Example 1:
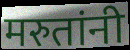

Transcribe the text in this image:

मरुतांनी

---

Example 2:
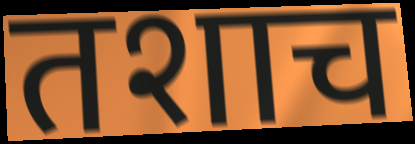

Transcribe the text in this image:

तशाच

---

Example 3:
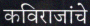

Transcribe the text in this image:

कविराजांचे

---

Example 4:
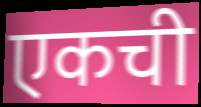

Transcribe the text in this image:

एकची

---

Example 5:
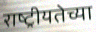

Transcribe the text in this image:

राष्ट्रीयतेच्या